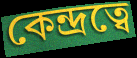
কেন্দ্রত্বে